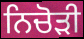
ਨਿਚੋੜੀ